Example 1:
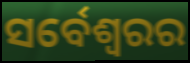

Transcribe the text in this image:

ସର୍ବେଶ୍ୱରର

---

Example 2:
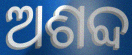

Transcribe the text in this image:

ଅଶବ୍ଦ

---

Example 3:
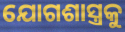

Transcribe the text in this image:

ଯୋଗଶାସ୍ତ୍ରକୁ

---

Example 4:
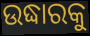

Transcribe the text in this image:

ଉଦ୍ଧାରକୁ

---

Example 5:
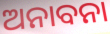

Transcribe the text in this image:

ଅନାବନା